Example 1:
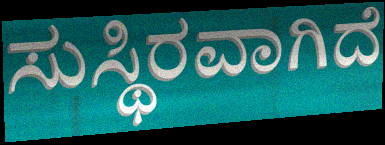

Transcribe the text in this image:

ಸುಸ್ಥಿರವಾಗಿದೆ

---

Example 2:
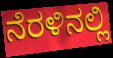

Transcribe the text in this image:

ನೆರಳಿನಲ್ಲಿ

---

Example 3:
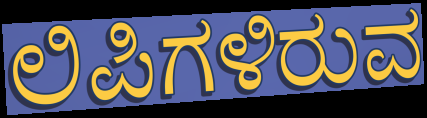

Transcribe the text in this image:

ಲಿಪಿಗಳಿರುವ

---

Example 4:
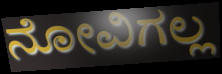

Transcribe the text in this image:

ನೋವಿಗಲ್ಲ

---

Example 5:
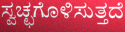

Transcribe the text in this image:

ಸ್ವಚ್ಛಗೊಳಿಸುತ್ತದೆ